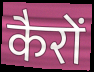
कैरों